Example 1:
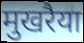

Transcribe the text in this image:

मुखरैया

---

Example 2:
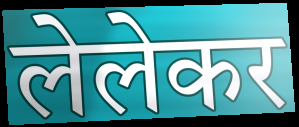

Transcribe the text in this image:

लेलेकर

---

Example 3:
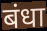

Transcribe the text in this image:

बंधा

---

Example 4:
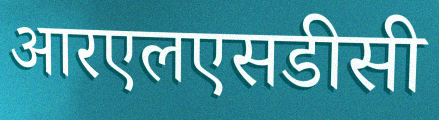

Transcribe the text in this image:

आरएलएसडीसी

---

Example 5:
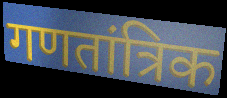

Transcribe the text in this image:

गणतांत्रिक